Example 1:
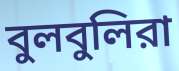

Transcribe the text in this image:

বুলবুলিরা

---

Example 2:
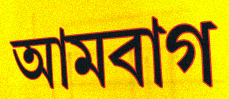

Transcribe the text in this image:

আমবাগ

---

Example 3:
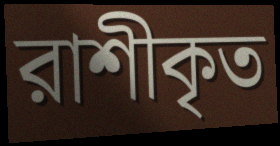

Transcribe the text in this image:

রাশীকৃত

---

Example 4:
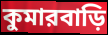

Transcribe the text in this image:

কুমারবাড়ি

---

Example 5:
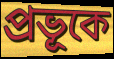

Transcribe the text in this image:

প্রভূকে